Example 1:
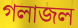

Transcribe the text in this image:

গলাজল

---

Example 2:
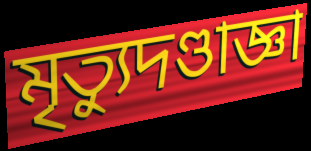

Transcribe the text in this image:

মৃত্যুদণ্ডাজ্ঞা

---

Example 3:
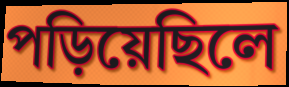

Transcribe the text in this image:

পড়িয়েছিলে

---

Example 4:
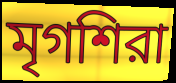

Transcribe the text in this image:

মৃগশিরা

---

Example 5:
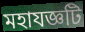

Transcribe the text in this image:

মহাযজ্ঞটি